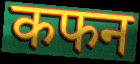
कफन